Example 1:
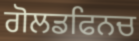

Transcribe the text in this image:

ਗੋਲਡਫਿਨਚ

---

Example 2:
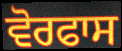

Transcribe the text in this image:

ਵੋਰਫਾਸ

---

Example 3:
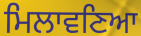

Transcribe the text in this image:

ਮਿਲਾਵਣਿਆ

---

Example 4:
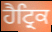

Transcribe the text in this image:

ਹੈਟ੍ਰਿਕ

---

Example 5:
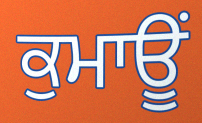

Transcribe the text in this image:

ਕੁਮਾਊਂ